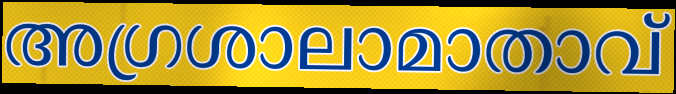
അഗ്രശാലാമാതാവ്